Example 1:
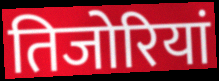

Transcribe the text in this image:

तिजोरियां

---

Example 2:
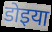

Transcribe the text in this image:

डोइया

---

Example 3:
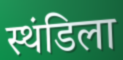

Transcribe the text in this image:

स्थंडिला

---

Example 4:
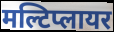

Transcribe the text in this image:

मल्टिप्लायर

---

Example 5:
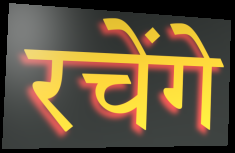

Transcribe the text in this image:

रचेंगे